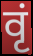
वृं